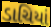
ડાચિયાં